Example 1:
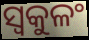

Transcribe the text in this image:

ସ୍ୱକୁଳଂ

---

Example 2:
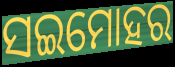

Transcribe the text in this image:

ସଇମୋହର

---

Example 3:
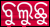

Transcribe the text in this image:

ବୁଲୁଛୁ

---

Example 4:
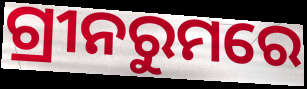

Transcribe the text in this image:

ଗ୍ରୀନରୁମରେ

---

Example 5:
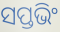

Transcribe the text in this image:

ସପ୍ତଭିଂ